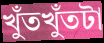
খুঁতখুঁতটা